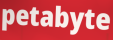
petabyte